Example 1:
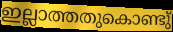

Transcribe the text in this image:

ഇല്ലാത്തതുകൊണ്ടു്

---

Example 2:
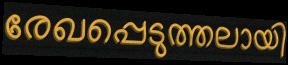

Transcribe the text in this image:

രേഖപ്പെടുത്തലായി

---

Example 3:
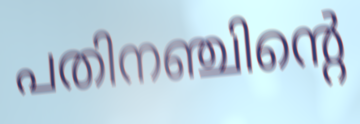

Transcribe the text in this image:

പതിനഞ്ചിന്റെ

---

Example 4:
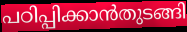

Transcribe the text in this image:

പഠിപ്പിക്കാൻതുടങ്ങി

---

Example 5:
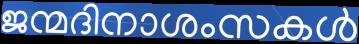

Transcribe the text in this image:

ജന്മദിനാശംസകൾ